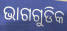
ଭାଗଗୁଡିକ